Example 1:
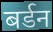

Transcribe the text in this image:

बर्डन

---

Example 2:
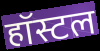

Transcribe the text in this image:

हॉस्टल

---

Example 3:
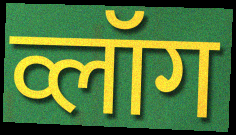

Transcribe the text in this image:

व्लॉग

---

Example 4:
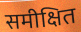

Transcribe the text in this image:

समीक्षित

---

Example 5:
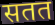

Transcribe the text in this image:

सतत